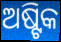
ଅଷ୍ଟିକ